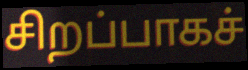
சிறப்பாகச்